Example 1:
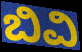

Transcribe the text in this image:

ಬಿವಿ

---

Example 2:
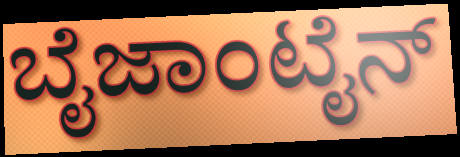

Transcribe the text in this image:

ಬೈಜಾಂಟೈನ್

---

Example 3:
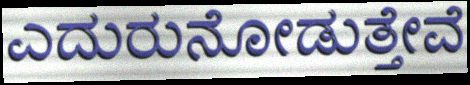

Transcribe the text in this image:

ಎದುರುನೋಡುತ್ತೇವೆ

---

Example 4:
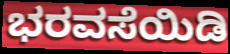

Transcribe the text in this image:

ಭರವಸೆಯಿಡಿ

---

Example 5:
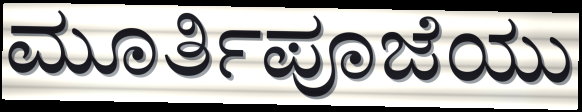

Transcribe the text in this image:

ಮೂರ್ತಿಪೂಜೆಯು